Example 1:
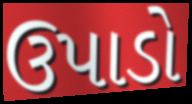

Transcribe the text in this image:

ઉપાડો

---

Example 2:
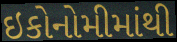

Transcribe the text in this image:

ઇકોનોમીમાંથી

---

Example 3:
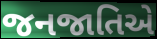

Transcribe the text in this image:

જનજાતિએ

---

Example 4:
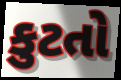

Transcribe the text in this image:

કુટતો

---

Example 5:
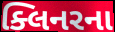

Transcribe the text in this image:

ક્લિનરના